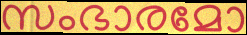
സംഭാരമോ